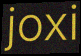
joxi